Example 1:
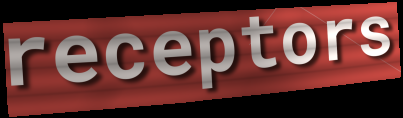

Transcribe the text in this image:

receptors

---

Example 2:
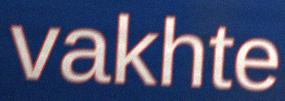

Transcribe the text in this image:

vakhte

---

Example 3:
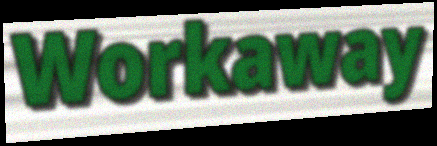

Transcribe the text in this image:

Workaway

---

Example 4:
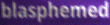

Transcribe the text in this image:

blasphemed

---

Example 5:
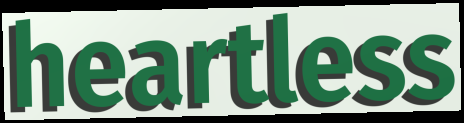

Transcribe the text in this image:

heartless